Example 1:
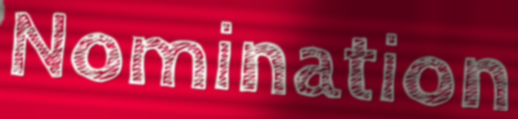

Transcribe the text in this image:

Nomination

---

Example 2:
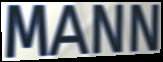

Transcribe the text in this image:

MANN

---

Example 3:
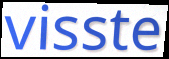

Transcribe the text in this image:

visste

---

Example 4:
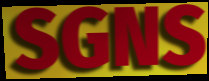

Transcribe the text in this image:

SGNS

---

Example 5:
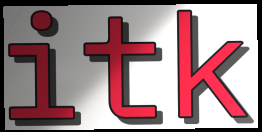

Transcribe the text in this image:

itk